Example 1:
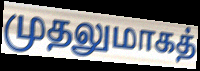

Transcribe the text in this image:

முதலுமாகத்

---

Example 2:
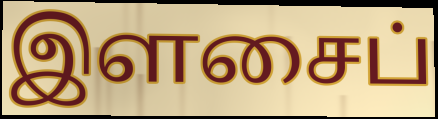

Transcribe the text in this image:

இளசைப்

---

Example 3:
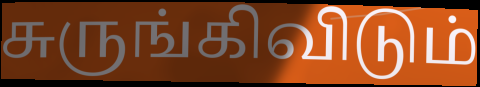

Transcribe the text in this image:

சுருங்கிவிடும்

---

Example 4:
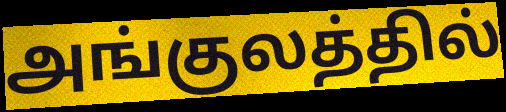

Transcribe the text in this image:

அங்குலத்தில்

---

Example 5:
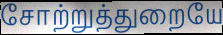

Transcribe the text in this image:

சோற்றுத்துறையே